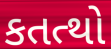
કતત્થો